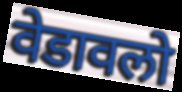
वेडावलो